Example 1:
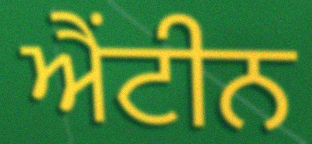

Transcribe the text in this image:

ਐਂਟੀਨ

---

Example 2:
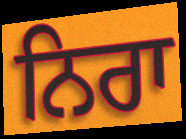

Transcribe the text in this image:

ਨਿਰਾ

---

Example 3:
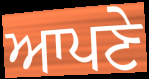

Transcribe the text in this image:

ਆਪਣੇ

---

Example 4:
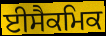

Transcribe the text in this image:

ਈਸੈਕਮਿਕ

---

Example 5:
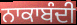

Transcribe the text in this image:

ਨਾਕਾਬੰਦੀ